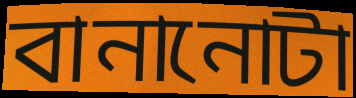
বানানোটা